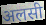
अलसी